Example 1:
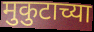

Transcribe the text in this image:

मुकुटाच्या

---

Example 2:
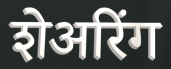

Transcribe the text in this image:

शेअरिंग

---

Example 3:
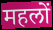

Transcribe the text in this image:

महलों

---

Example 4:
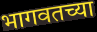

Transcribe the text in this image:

भागवतच्या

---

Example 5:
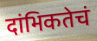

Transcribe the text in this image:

दांभिकतेचं